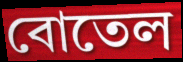
বোতেল